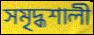
সমৃদ্ধশালী